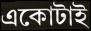
একোটাই